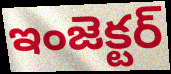
ఇంజెక్టర్